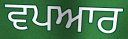
ਵਪਆਰ